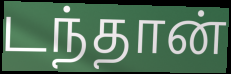
டந்தான்